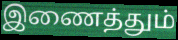
இணைத்தும்